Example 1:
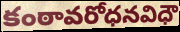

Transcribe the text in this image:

కంఠావరోధనవిధౌ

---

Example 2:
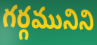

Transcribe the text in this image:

గర్గమునిని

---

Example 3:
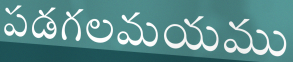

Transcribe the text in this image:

పడగలమయము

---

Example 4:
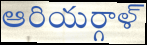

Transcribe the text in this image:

ఆరియర్గాళ్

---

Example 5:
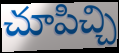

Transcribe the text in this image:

చూపిచ్చి